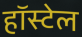
हॉस्टेल